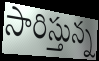
సారిస్తున్న